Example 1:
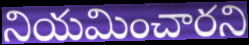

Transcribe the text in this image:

నియమించారని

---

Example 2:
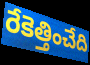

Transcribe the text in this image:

రేకెత్తించేది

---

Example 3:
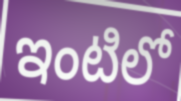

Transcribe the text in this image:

ఇంటిలో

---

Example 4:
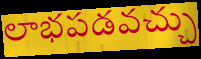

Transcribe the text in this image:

లాభపడవచ్చు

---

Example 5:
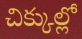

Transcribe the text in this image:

చిక్కుల్లో